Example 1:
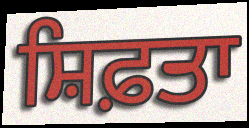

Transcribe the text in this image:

ਸ਼ਿਫ਼ਤਾ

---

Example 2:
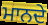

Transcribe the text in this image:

ਮਾਨਦੇ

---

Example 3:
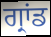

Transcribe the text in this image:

ਗ੍ਰਾਂਡ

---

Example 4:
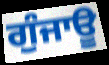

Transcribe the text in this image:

ਗੁੰਜਾਊ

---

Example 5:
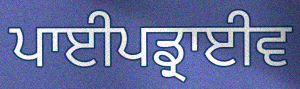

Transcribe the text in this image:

ਪਾਈਪਡ੍ਰਾਈਵ